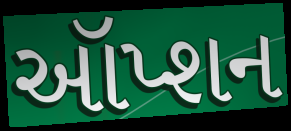
ઑપ્શન